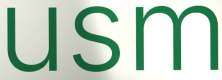
usm